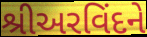
શ્રીઅરવિંદને